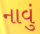
નાવું